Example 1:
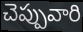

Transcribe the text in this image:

చెప్పువారి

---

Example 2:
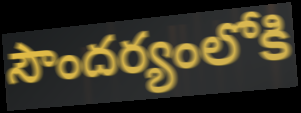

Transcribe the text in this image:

సౌందర్యంలోకి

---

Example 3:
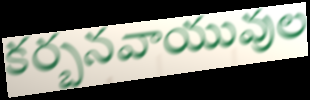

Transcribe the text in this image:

కర్బనవాయువుల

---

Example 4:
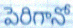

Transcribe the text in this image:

పెరిగానో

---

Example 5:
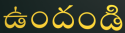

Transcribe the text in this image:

ఉందండి